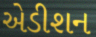
એડીશન